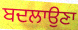
ਬਦਲਾਉਣਾ